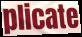
plicate